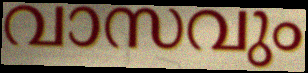
വാസവും